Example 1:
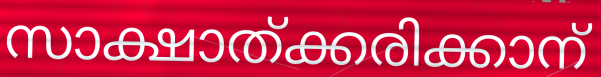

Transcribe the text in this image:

സാക്ഷാത്ക്കരിക്കാന്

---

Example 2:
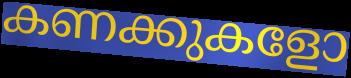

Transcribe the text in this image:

കണക്കുകളോ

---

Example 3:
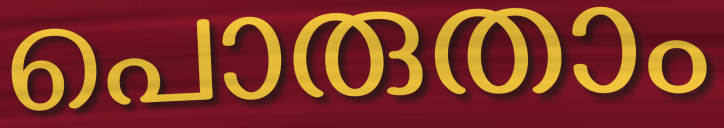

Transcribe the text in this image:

പൊരുതാം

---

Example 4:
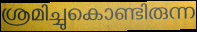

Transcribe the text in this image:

ശ്രമിച്ചുകൊണ്ടിരുന്ന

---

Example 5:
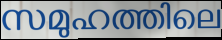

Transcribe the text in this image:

സമുഹത്തിലെ